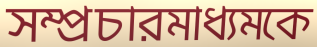
সম্প্রচারমাধ্যমকে